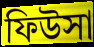
ফিউসা